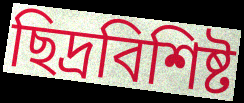
ছিদ্রবিশিষ্ট